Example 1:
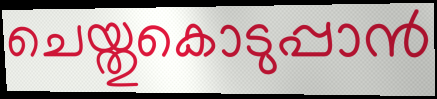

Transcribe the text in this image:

ചെയ്തുകൊടുപ്പാൻ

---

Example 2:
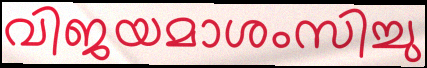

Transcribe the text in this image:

വിജയമാശംസിച്ചു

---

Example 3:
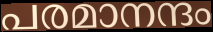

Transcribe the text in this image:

പരമാനന്ദം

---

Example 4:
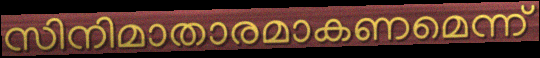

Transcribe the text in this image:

സിനിമാതാരമാകണമെന്ന്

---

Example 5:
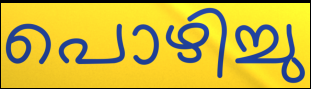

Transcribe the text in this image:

പൊഴിച്ചു